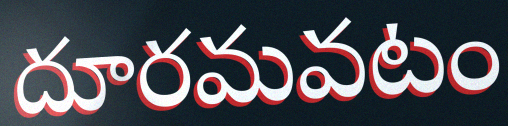
దూరమవటం